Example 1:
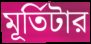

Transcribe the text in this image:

মূর্তিটার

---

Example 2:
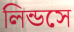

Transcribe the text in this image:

লিন্ডসে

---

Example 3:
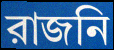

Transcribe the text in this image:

রাজনি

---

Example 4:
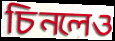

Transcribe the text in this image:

চিনলেও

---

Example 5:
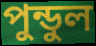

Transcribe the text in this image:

পুন্ডুল